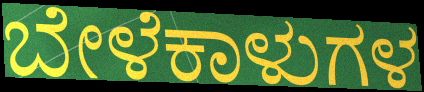
ಬೇಳೆಕಾಳುಗಳ